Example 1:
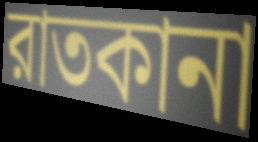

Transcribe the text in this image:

রাতকানা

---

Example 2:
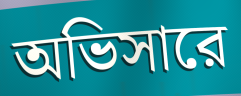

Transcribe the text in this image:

অভিসারে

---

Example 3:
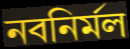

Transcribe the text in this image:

নবনির্মল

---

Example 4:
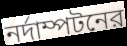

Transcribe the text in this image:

নর্দাম্পটনের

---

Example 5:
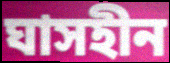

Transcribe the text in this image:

ঘাসহীন